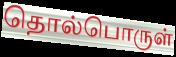
தொல்பொருள்